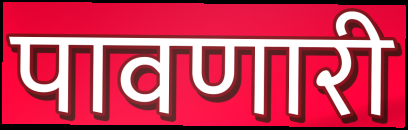
पावणारी